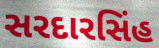
સરદારસિંહ